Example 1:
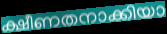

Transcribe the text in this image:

ക്ഷീണതനാക്കിയാ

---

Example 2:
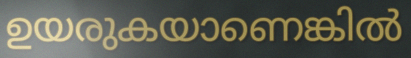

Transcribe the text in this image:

ഉയരുകയാണെങ്കിൽ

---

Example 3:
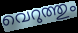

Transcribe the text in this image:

വെറുത്തും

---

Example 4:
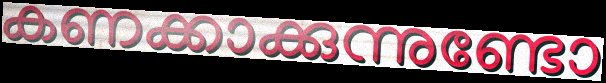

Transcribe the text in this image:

കണക്കാക്കുന്നുണ്ടോ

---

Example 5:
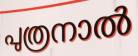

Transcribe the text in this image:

പുത്രനാൽ